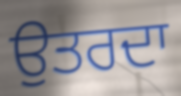
ਉਤਰਦਾ